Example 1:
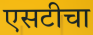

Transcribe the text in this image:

एसटीचा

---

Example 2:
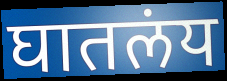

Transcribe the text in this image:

घातलंय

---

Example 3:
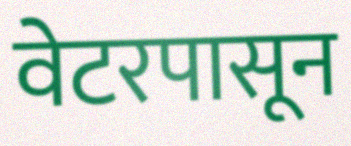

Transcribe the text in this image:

वेटरपासून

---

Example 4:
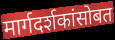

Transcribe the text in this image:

मार्गदर्शकांसोबत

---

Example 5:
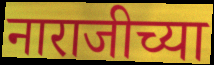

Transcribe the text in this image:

नाराजीच्या